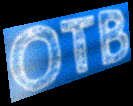
OTB